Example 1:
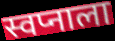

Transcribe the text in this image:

स्वप्नाला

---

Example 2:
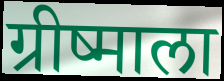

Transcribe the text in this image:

ग्रीष्माला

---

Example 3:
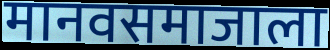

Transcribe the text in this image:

मानवसमाजाला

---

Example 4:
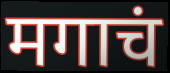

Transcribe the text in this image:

मगाचं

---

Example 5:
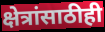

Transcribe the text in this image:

क्षेत्रांसाठीही